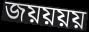
জয়য়য়য়